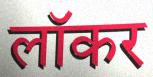
लॉकर